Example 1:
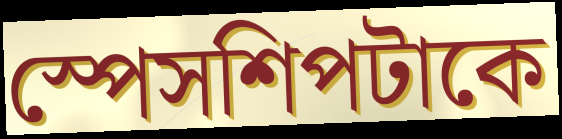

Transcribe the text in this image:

স্পেসশিপটাকে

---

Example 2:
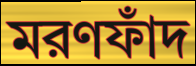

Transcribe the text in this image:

মরণফাঁদ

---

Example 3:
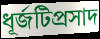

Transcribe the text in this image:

ধূর্জটিপ্রসাদ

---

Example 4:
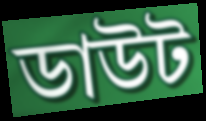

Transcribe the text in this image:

ডাউট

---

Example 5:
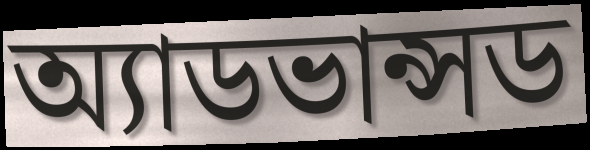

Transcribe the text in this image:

অ্যাডভান্সড